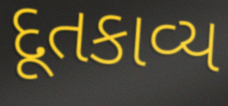
દૂતકાવ્ય